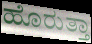
ಹೊರುತ್ತಾ